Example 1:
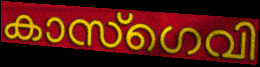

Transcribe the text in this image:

കാസ്ഗെവി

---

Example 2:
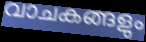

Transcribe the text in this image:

വാചകങ്ങളും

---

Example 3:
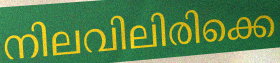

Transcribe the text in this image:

നിലവിലിരിക്കെ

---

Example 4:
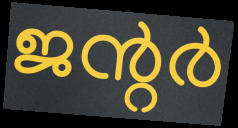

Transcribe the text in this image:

ജന്റർ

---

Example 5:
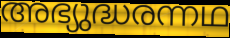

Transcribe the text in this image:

അഭ്യുദ്ധരന്നഥ